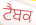
ਟੈਬਕ